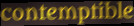
contemptible